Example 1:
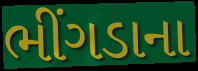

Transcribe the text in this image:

ભીંગડાના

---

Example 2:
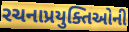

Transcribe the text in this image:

રચનાપ્રયુક્તિઓની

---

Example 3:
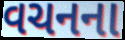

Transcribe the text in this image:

વચનના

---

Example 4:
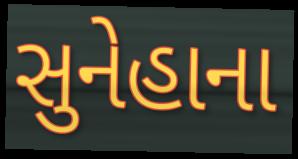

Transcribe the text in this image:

સુનેહાના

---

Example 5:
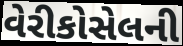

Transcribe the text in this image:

વેરીકોસેલની